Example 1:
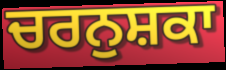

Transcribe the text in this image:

ਚਰਨੁਸ਼ਕਾ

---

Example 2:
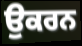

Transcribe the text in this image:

ਉਕਰਨ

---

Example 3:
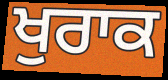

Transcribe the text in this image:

ਖੁਰਾਕ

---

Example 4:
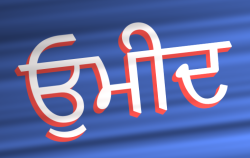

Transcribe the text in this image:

ਓੁਮੀਦ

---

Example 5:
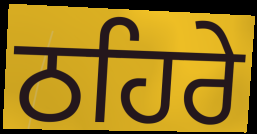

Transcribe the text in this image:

ਠਹਿਰੇ